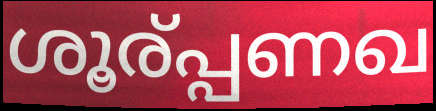
ശൂര്പ്പണഖ